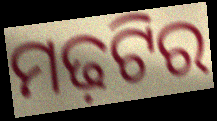
ମଢ଼ଟିର